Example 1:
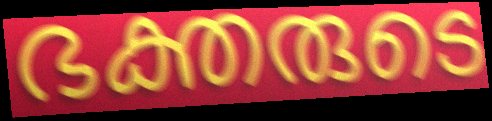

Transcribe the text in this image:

ഭക്തരുടെ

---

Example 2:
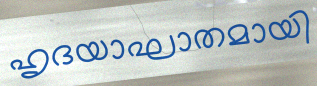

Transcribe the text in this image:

ഹൃദയാഘാതമായി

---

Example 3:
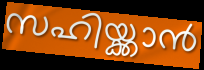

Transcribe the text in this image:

സഹിയ്ക്കാൻ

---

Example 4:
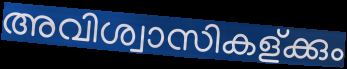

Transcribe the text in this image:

അവിശ്വാസികള്ക്കും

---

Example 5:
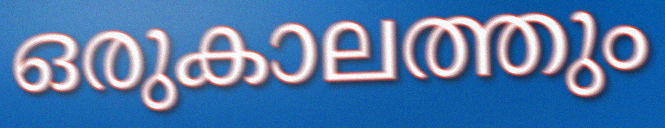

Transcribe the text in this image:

ഒരുകാലത്തും